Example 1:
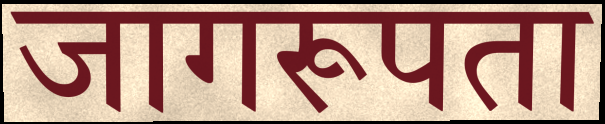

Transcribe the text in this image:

जागरूपता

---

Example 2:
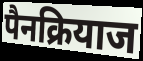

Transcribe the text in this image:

पैनक्रियाज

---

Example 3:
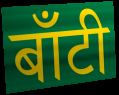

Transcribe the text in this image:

बाँटी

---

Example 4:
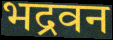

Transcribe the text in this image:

भद्रवन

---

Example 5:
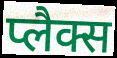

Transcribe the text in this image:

प्लैक्स